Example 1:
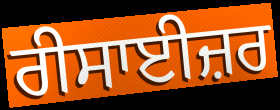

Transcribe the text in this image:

ਰੀਸਾਈਜ਼ਰ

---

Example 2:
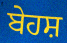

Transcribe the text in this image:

ਬੇਹਸ਼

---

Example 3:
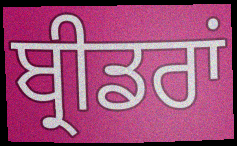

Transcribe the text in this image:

ਬ੍ਰੀਡਰਾਂ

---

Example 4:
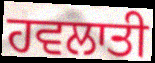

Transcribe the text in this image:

ਹਵਲਾਤੀ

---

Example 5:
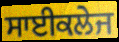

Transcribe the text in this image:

ਸਾਈਕਲੇਜ